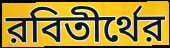
রবিতীর্থের